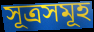
সূত্ৰসমূহ